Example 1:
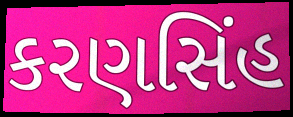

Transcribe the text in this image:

કરણસિંહ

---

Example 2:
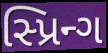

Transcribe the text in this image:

સ્પ્રિન્ગ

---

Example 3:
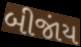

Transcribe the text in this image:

બીજાંય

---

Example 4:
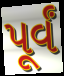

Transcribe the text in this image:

પૂર્વં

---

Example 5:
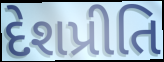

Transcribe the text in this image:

દેશપ્રીતિ